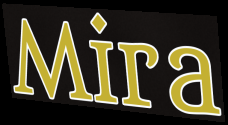
Mira